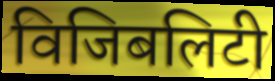
विजिबलिटी